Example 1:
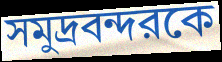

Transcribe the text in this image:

সমুদ্রবন্দরকে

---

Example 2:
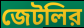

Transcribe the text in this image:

জেটলির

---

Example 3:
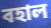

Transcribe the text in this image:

বহাল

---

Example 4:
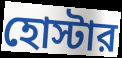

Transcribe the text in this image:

হোস্টার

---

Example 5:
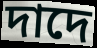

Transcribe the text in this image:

দাদে